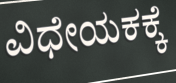
ವಿಧೇಯಕಕ್ಕೆ